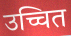
उच्चित